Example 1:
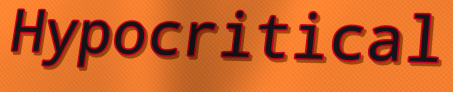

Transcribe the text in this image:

Hypocritical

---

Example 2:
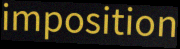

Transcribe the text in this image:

imposition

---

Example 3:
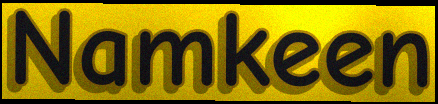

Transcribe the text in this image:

Namkeen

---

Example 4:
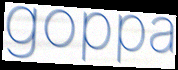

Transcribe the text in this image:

goppa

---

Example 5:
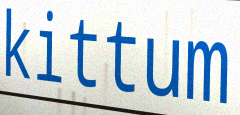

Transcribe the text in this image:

kittum